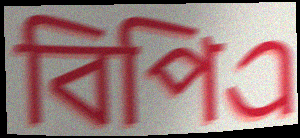
বিপিএ